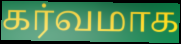
கர்வமாக